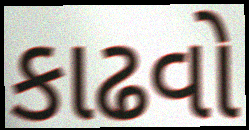
કાઢવો